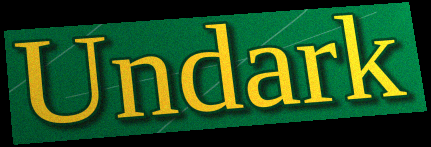
Undark